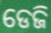
ଡେଜି